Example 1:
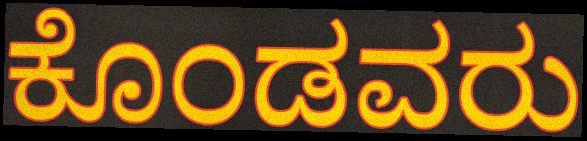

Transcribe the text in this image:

ಕೊಂಡವರು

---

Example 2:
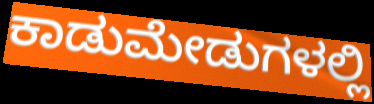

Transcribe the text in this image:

ಕಾಡುಮೇಡುಗಳಲ್ಲಿ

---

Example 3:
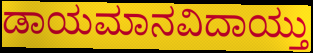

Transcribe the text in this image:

ಡಾಯಮಾನವಿದಾಯ್ತು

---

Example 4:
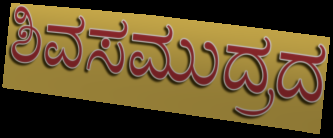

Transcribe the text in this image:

ಶಿವಸಮುದ್ರದ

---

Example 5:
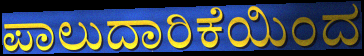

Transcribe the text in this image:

ಪಾಲುದಾರಿಕೆಯಿಂದ